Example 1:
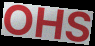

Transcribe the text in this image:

OHS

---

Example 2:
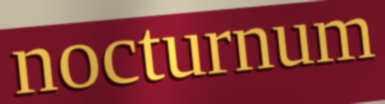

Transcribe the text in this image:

nocturnum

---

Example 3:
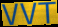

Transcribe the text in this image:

VVT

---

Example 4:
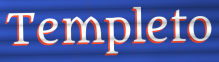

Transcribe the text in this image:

Templeto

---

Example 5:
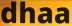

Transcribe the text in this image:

dhaa